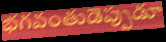
భగవంతుడెప్పుడూ